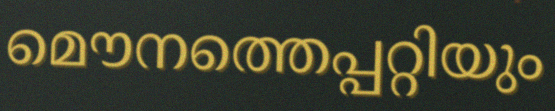
മൌനത്തെപ്പറ്റിയും